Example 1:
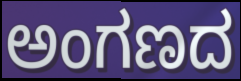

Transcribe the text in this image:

ಅಂಗಣದ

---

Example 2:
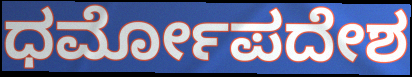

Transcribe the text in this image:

ಧರ್ಮೋಪದೇಶ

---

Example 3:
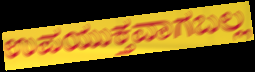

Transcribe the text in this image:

ಉಪಯುಕ್ತವಾಗಬಲ್ಲ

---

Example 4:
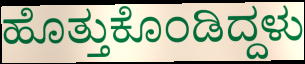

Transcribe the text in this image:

ಹೊತ್ತುಕೊಂಡಿದ್ದಳು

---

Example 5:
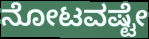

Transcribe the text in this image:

ನೋಟವಷ್ಟೇ